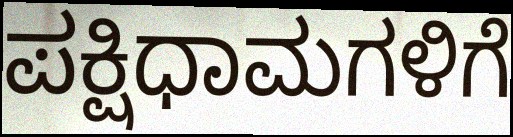
ಪಕ್ಷಿಧಾಮಗಳಿಗೆ